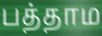
பத்தாம